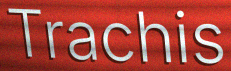
Trachis